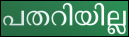
പതറിയില്ല